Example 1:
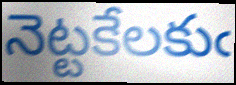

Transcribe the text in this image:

నెట్టకేలకుఁ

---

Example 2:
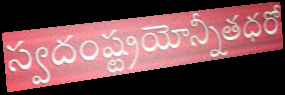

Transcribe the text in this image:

స్వదంష్ట్రయోన్నీతధరో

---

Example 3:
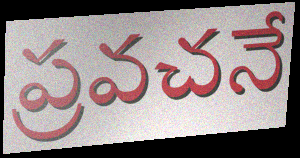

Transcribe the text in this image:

ప్రవచనే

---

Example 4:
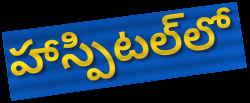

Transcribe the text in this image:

హాస్పిటల్‌లో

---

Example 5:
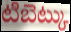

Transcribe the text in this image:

టిబెట్కు